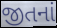
જીતનાં